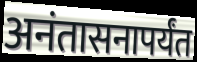
अनंतासनापर्यंत